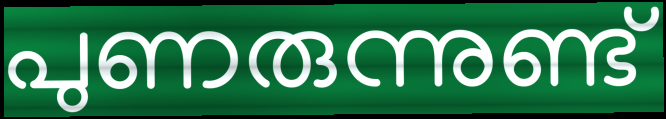
പുണരുന്നുണ്ട്